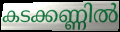
കടക്കണ്ണിൽ